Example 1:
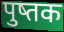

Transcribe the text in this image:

पुष्तक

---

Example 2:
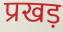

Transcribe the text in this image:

प्रखड़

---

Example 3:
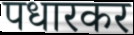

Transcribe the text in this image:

पधारकर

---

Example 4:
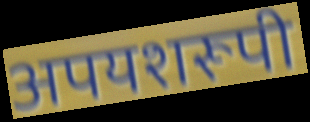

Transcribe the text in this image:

अपयशरूपी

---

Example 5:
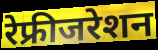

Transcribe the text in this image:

रेफ्रीजरेशन